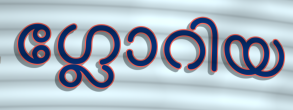
ഗ്ലോറിയ